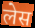
लेस